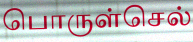
பொருள்செல்